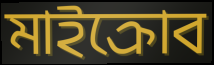
মাইক্রোব